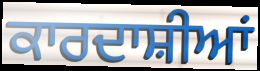
ਕਾਰਦਾਸ਼ੀਆਂ